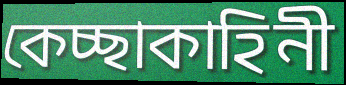
কেচ্ছাকাহিনী